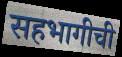
सहभागीची